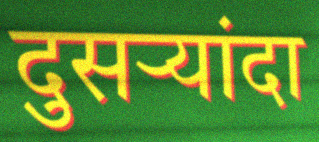
दुसर्‍यांदा